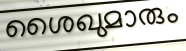
ശൈഖുമാരും